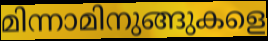
മിന്നാമിനുങ്ങുകളെ